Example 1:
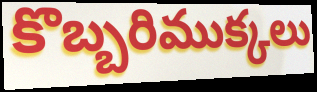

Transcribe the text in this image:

కొబ్బరిముక్కలు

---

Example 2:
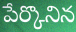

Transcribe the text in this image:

పేర్కొనిన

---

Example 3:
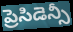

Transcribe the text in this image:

ప్రెసిడెన్సీ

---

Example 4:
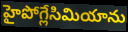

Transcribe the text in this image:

హైపోగ్లేసిమియాను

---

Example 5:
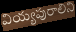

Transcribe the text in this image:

వియ్యపురాలిని